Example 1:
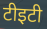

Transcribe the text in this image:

टीइटी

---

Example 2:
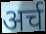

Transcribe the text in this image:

अर्च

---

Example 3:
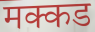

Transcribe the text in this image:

मक्कड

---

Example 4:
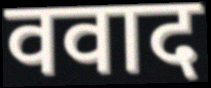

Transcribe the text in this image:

ववाद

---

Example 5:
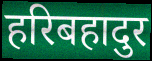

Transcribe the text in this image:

हरिबहादुर